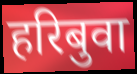
हरिबुवा